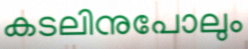
കടലിനുപോലും